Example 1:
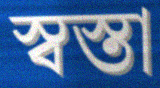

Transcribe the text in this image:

স্বস্তা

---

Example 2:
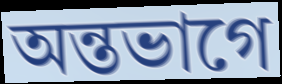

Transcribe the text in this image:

অন্তভাগে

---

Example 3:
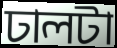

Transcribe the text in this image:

ঢালটা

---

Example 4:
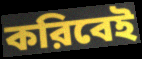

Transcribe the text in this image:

করিবেই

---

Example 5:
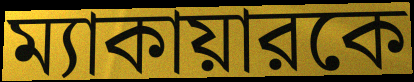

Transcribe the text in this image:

ম্যাকায়ারকে